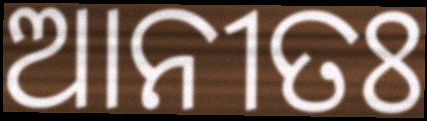
ଆନୀତଃ